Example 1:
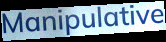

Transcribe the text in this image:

Manipulative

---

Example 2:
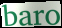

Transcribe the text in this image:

baro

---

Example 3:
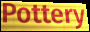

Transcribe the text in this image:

Pottery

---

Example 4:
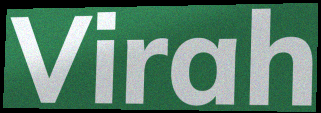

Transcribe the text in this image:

Virah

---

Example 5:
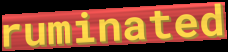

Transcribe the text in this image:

ruminated